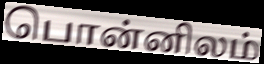
பொன்னிலம்